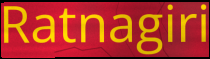
Ratnagiri